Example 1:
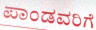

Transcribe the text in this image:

ಪಾಂಡವರಿಗೆ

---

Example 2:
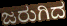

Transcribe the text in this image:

ಜರುಗಿದ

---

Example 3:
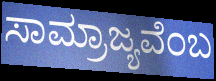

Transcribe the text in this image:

ಸಾಮ್ರಾಜ್ಯವೆಂಬ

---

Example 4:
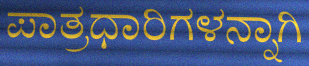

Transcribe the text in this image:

ಪಾತ್ರಧಾರಿಗಳನ್ನಾಗಿ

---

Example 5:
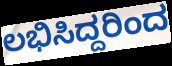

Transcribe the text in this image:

ಲಭಿಸಿದ್ದರಿಂದ